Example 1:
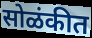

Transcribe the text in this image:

सोळंकीत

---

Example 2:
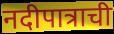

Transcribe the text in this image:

नदीपात्राची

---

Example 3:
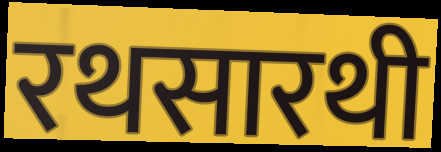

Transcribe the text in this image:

रथसारथी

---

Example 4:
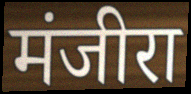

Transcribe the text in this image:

मंजीरा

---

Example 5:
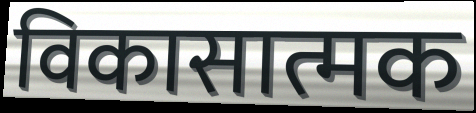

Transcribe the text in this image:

विकासात्मक